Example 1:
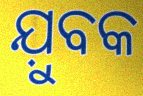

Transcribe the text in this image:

ଯ଼ୁବକ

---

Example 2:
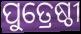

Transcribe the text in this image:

ପୁତ୍ରେଷ୍ଠୀ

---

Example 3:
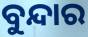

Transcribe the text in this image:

ବୁନ୍ଦାର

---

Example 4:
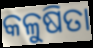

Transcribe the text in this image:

କଳୁଷିତା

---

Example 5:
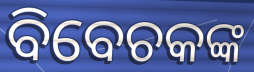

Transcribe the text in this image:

ବିବେଚକଙ୍କ